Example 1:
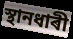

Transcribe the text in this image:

স্থানধাৰী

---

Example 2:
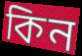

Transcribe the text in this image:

কিন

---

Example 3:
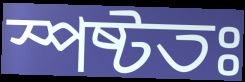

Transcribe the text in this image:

স্পষ্টতঃ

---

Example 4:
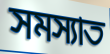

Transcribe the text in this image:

সমস্যাত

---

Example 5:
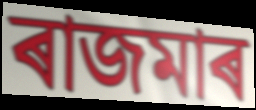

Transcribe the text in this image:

ৰাজমাৰ